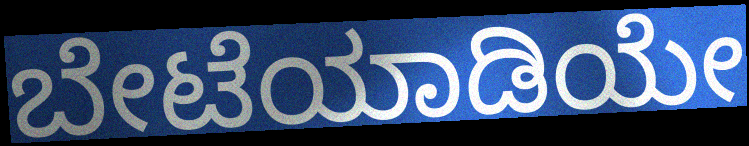
ಬೇಟೆಯಾಡಿಯೇ